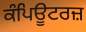
ਕੰਪਿਊਟਰਜ਼